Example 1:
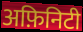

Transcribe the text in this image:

अफ़िनिटी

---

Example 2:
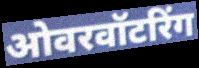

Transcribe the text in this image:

ओवरवॉटरिंग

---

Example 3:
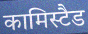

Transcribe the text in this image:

कामिस्टैड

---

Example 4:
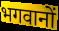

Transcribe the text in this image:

भगवानों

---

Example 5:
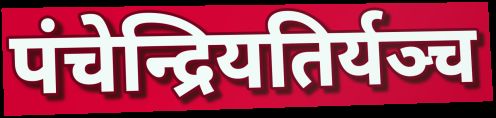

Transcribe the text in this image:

पंचेन्द्रियतिर्यञ्च